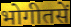
भोगीतसें